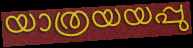
യാത്രയയപ്പു